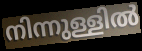
നിന്നുള്ളിൽ